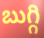
బుగ్గి